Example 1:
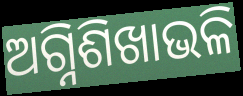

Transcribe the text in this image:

ଅଗ୍ନିଶିଖାଭଳି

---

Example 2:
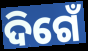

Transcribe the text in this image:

ଦିଗେଁ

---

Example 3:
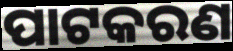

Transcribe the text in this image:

ପାଟକରଣ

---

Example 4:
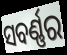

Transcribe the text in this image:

ସବର୍ଣ୍ଣର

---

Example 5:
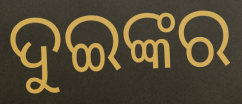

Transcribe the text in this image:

ଦୁଇଙ୍କର